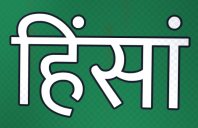
हिंसां